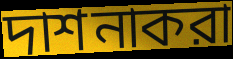
দাশনাকরা